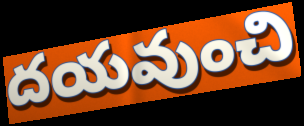
దయవుంచి